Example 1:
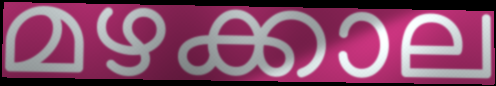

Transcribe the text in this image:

മഴക്കാല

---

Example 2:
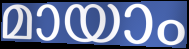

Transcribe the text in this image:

മായാം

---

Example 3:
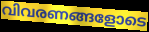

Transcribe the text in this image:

വിവരണങ്ങളോടെ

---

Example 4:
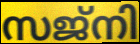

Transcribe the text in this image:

സജ്നി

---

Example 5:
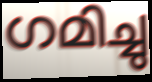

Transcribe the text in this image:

ഗമിച്ചു